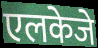
एलकेजे